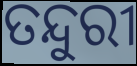
ତନ୍ଦୁରୀ